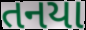
તનયા